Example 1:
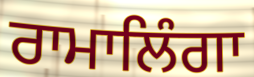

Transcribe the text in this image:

ਰਾਮਾਲਿੰਗਾ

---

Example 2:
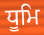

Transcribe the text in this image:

ਧੂਮਿ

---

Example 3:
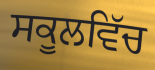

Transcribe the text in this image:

ਸਕੂਲਵਿੱਚ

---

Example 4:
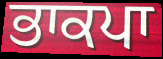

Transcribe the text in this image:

ਭਾਕਪਾ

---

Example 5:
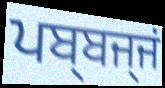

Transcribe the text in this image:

ਪਬ੍ਬਜ੍ਜਂ